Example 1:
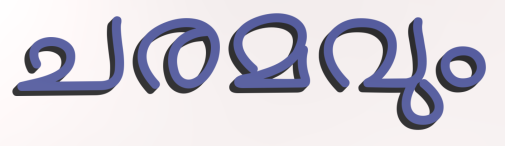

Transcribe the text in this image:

ചരമവും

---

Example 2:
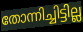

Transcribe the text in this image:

തോന്നിച്ചിട്ടില്ല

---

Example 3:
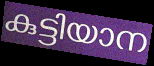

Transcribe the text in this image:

കുട്ടിയാന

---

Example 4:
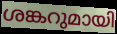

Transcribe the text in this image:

ശങ്കറുമായി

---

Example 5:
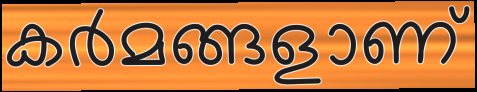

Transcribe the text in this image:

കർമങ്ങളാണ്